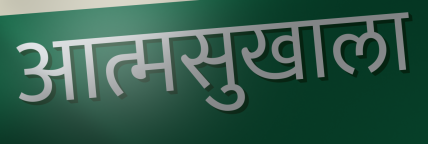
आत्मसुखाला